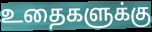
உதைகளுக்கு